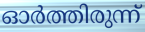
ഓർത്തിരുന്ന്